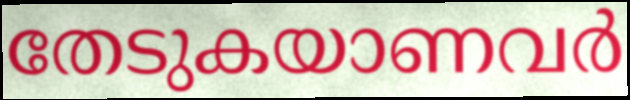
തേടുകയാണവർ